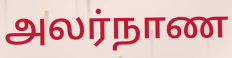
அலர்நாண